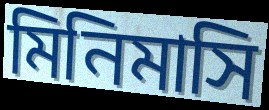
মিনিমাসি